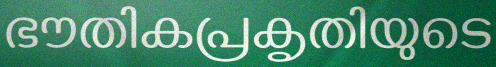
ഭൗതികപ്രകൃതിയുടെ